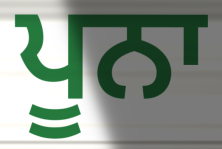
ਪੂਨਾ